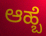
ಆಹ್ಬೆ